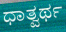
ಧಾತ್ವರ್ಥ